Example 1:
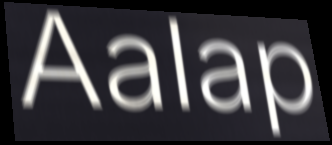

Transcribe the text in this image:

Aalap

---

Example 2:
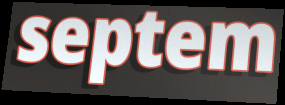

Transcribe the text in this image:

septem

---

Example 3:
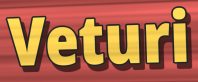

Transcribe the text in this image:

Veturi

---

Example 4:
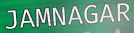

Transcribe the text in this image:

JAMNAGAR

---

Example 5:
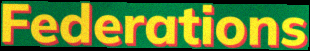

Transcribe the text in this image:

Federations